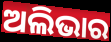
ଅଲିଭାର